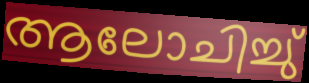
ആലോചിച്ചു്